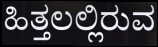
ಹಿತ್ತಲಲ್ಲಿರುವ